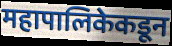
महापालिकेकडून